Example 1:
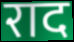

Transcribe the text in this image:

राद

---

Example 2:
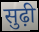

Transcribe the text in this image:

सुढ़ी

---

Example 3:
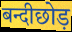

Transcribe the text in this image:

बन्दीछोड़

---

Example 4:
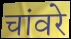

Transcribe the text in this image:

चांवरे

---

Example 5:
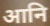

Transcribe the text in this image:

आनि